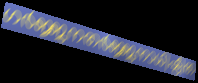
ഗർജ്ജനതർജ്ജനാധിഷ്ഠിത